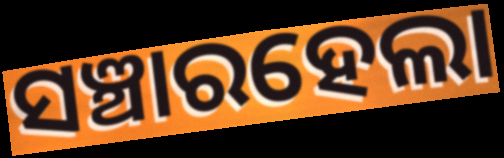
ସଞ୍ଚାରହେଲା